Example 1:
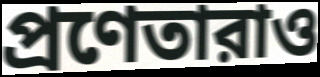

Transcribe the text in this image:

প্রণেতারাও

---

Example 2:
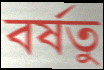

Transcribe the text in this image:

বর্ষতু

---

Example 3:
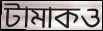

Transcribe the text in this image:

টামাকও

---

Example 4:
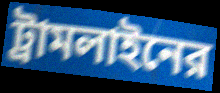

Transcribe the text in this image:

ট্রামলাইনের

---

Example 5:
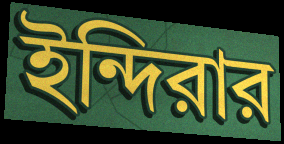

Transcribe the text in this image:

ইন্দিরার